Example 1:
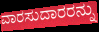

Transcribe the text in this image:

ವಾರಸುದಾರರನ್ನು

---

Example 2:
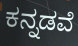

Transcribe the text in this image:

ಕನ್ನಡವೆ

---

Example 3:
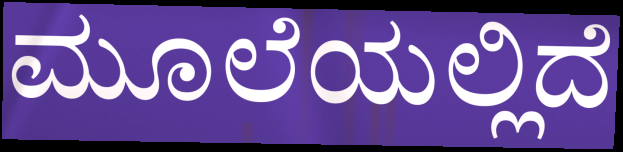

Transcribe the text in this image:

ಮೂಲೆಯಲ್ಲಿದೆ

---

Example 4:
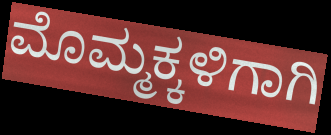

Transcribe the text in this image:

ಮೊಮ್ಮಕ್ಕಳಿಗಾಗಿ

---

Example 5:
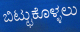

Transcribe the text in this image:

ಬಿಟ್ಟುಕೊಳ್ಳಲು